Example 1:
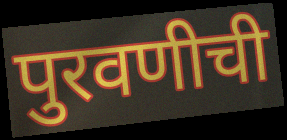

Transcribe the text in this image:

पुरवणीची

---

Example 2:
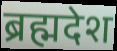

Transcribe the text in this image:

ब्रह्मदेश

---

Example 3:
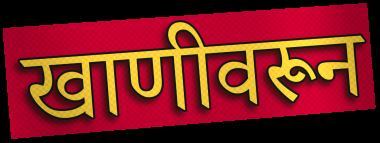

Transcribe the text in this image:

खाणीवरून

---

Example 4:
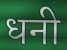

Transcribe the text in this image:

धनी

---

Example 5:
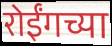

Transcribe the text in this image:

रोईंगच्या